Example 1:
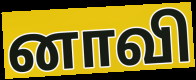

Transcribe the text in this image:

னாவி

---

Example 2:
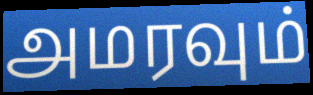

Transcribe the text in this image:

அமரவும்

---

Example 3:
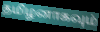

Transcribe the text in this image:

தமிழனாகவும்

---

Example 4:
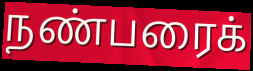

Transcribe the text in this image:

நண்பரைக்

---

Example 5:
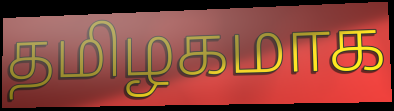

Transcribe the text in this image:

தமிழகமாக